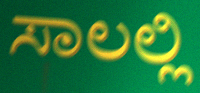
ಸಾಲಲ್ಲಿ